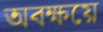
অবক্ষয়ে